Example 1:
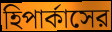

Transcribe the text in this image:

হিপার্কাসের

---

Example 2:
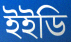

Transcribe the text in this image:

ইইডি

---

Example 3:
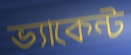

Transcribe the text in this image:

ভ্যাকেন্ট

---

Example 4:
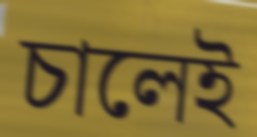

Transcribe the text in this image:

চালেই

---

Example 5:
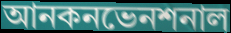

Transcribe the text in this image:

আনকনভেনশনাল